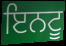
ਇਨਟੂ